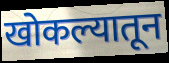
खोकल्यातून